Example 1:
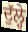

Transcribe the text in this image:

ਦੁੱਲ੍ਹੇ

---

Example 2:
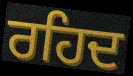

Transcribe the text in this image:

ਰਹਿਦ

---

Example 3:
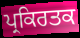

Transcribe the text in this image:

ਪ੍ਰਕਿਰਤਕ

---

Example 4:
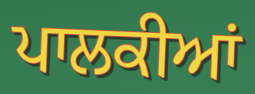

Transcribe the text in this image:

ਪਾਲਕੀਆਂ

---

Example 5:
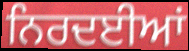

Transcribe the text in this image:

ਨਿਰਦਈਆਂ